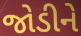
જોડીને